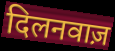
दिलनवाज़